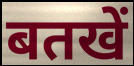
बतखें